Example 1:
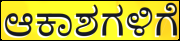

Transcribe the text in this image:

ಆಕಾಶಗಳಿಗೆ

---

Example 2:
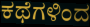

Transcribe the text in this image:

ಕಥೆಗಳಿಂದ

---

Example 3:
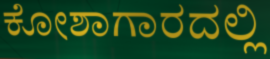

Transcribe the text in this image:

ಕೋಶಾಗಾರದಲ್ಲಿ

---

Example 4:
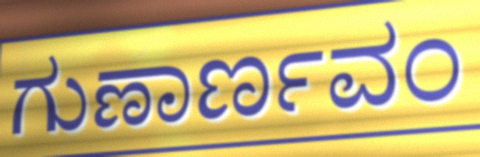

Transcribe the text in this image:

ಗುಣಾರ್ಣವಂ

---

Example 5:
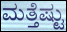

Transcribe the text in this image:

ಮತ್ತೆಷ್ಟು